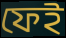
ফেই